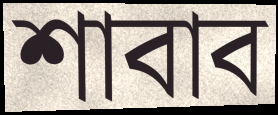
শাবাব